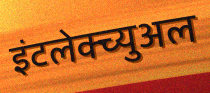
इंटलेक्च्युअल